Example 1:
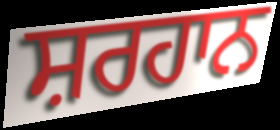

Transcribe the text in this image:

ਸ਼ਰਹਾਨ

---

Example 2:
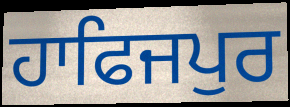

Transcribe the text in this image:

ਹਾਫਿਜਪੁਰ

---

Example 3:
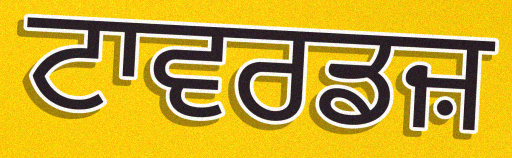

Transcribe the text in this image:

ਟਾਵਰਡਜ਼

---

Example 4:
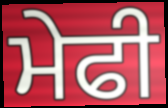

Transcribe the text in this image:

ਮੇਫੀ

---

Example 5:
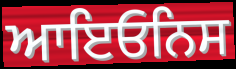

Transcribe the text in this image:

ਆਇਓਨਿਸ